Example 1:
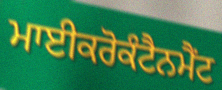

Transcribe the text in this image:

ਮਾਈਕਰੋਕੰਟੈਨਮੈਂਟ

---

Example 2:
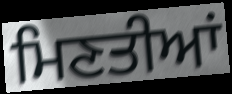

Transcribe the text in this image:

ਮਿਣਤੀਆਂ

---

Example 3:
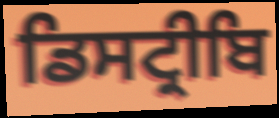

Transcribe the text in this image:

ਡਿਸਟ੍ਰੀਬਿ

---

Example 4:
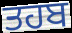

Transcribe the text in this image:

ਤਹਬ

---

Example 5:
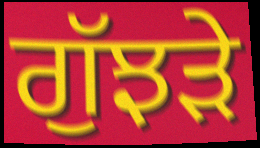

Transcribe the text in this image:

ਗੁੱਝੜੇ